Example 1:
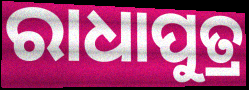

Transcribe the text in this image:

ରାଧାପୁତ୍ର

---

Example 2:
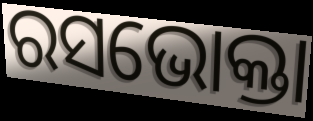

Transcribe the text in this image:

ରସଭୋକ୍ତା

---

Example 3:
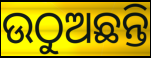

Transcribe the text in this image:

ଉଠୁଅଛନ୍ତି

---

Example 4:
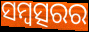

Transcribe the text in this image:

ସମ୍ବତ୍ସରର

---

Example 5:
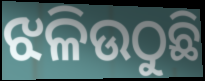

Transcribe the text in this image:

ଝଳିଉଠୁଛି